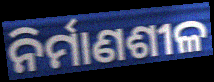
ନିର୍ମାଣଶୀଳ